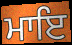
ਮਾਇ